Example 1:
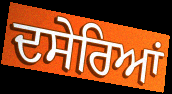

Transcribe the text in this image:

ਦਸੇਰਿਆਂ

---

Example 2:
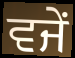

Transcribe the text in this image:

ਵਜੇਂ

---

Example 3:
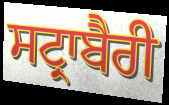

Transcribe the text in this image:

ਸਟ੍ਰਾਬੈਰੀ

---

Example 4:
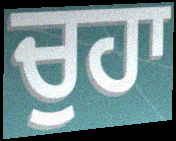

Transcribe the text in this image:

ਚੁਹਾ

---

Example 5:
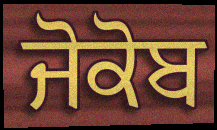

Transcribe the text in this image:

ਜੋਕੋਬ